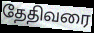
தேதிவரை